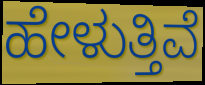
ಹೇಳುತ್ತಿವೆ